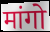
मांगो